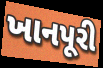
ખાનપૂરી